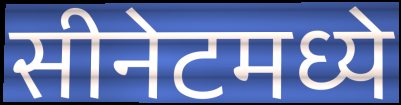
सीनेटमध्ये